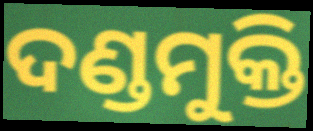
ଦଣ୍ଡମୁକ୍ତି